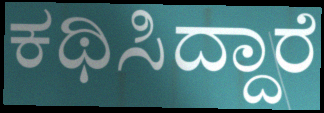
ಕಥಿಸಿದ್ದಾರೆ